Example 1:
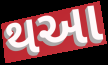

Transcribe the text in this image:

થઆ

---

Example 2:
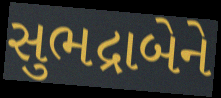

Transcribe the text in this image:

સુભદ્રાબેને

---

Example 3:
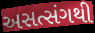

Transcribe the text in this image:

અસત્સંગથી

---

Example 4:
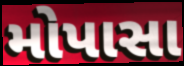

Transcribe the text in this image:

મોપાસા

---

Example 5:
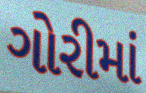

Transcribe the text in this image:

ગોરીમાં